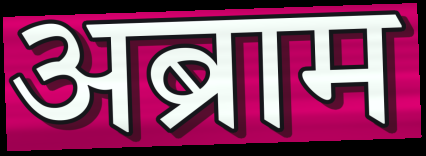
अब्राम